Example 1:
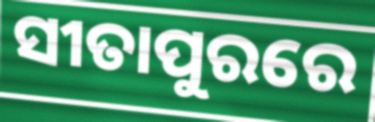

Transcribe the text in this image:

ସୀତାପୁରରେ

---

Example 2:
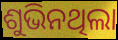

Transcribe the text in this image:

ଶୁଭିନଥିଲା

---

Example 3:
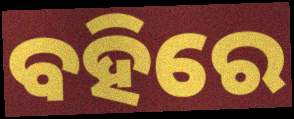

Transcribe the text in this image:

ବହିରେ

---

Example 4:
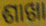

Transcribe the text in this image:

ଶାଖା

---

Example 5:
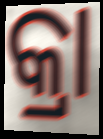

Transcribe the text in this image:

କ୍ରା